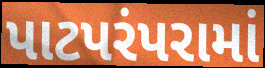
પાટપરંપરામાં